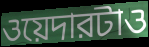
ওয়েদারটাও